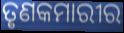
ତୃଣକମାରୀର